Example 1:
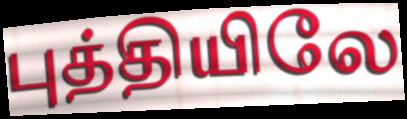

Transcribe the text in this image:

புத்தியிலே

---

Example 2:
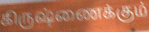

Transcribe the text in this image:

கிருஷ்ணைக்கும்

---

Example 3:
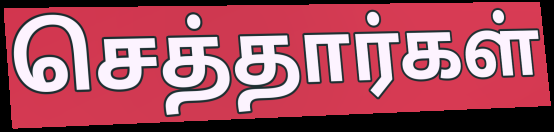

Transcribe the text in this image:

செத்தார்கள்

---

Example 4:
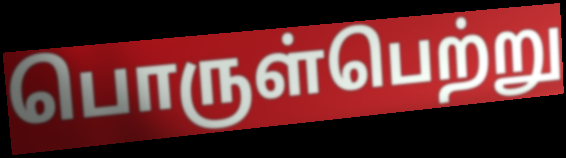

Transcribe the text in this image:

பொருள்பெற்று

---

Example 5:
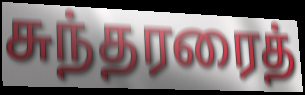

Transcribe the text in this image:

சுந்தரரைத்